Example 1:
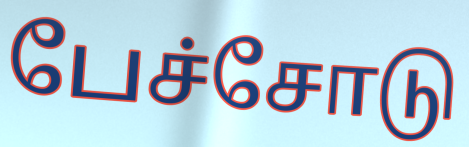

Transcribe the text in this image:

பேச்சோடு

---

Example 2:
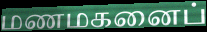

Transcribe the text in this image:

மணமகனைப்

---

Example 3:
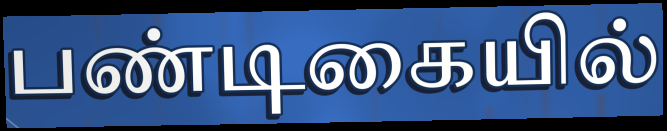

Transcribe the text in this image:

பண்டிகையில்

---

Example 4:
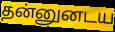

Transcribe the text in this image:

தன்னுனடய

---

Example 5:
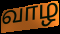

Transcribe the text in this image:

வாழ